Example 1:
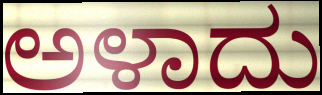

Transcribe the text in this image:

ಅಳಾದು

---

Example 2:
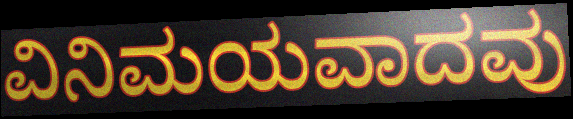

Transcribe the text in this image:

ವಿನಿಮಯವಾದವು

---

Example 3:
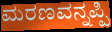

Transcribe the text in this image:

ಮರಣವನ್ನಪ್ಪಿ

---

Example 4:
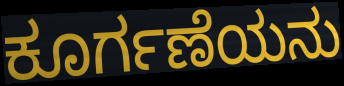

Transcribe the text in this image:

ಕೂರ್ಗಣೆಯನು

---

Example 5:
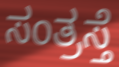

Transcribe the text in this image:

ಸಂತ್ರಸ್ತೆ